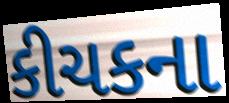
કીચકના